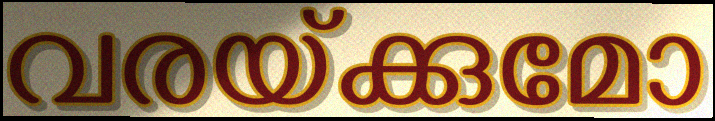
വരയ്‌ക്കുമോ